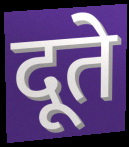
दूते